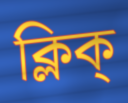
ক্লিক্